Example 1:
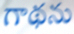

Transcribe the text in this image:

గాథను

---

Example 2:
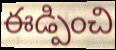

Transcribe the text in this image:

ఈడ్పించి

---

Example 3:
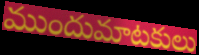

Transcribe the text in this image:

ముందుమాటకులు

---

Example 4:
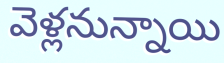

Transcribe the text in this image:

వెళ్లనున్నాయి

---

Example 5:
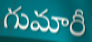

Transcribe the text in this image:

గుమారీ